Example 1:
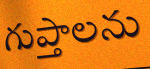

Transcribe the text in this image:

గుప్తాలను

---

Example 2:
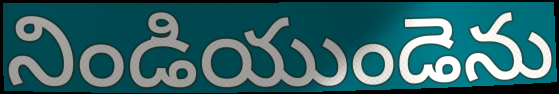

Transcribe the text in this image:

నిండియుండెను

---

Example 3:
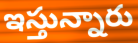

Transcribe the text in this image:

ఇస్తున్నారు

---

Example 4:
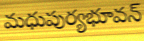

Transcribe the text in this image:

మధుపుర్యభూవన్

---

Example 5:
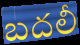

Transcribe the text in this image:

బదలీ